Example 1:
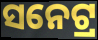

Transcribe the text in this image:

ସନେଟ୍ର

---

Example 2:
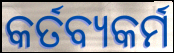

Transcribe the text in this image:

କର୍ତବ୍ଯକର୍ମ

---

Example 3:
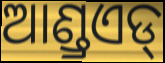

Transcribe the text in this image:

ଆଣ୍ଡ୍ରଏଡ୍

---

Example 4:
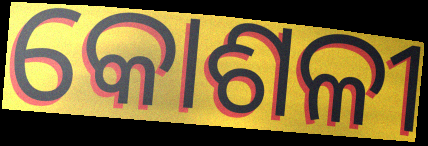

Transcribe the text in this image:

କୋଶଳୀ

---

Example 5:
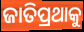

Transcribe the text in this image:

ଜାତିପ୍ରଥାକୁ